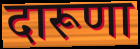
दारूणा